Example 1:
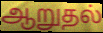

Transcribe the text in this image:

ஆறுதல்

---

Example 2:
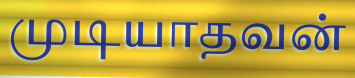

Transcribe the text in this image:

முடியாதவன்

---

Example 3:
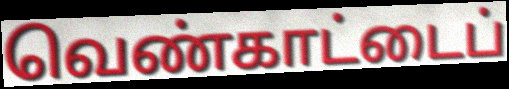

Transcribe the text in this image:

வெண்காட்டைப்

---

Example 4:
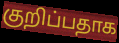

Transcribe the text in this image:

குறிப்பதாக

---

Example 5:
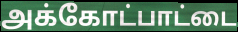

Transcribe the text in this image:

அக்கோட்பாட்டை